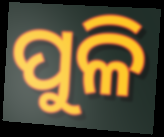
ପୁଳି